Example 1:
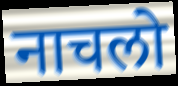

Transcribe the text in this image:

नाचलो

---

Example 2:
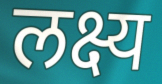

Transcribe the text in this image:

लक्ष्य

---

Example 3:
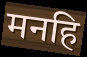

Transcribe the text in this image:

मनहि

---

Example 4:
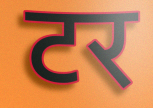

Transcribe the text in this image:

टर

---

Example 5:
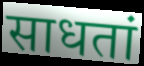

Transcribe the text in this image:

साधतां